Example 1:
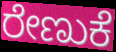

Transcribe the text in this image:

ರೇಣುಕೆ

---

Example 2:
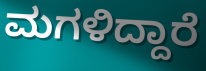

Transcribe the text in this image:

ಮಗಳಿದ್ದಾರೆ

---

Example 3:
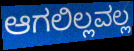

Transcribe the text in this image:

ಆಗಲಿಲ್ಲವಲ್ಲ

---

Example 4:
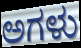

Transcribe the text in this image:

ಅಗಳು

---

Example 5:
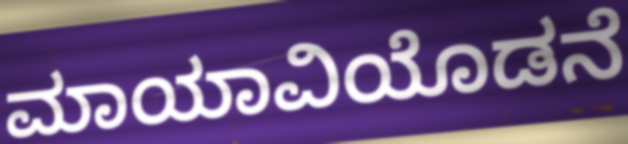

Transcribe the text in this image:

ಮಾಯಾವಿಯೊಡನೆ